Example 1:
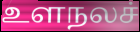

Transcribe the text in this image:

உளநலச்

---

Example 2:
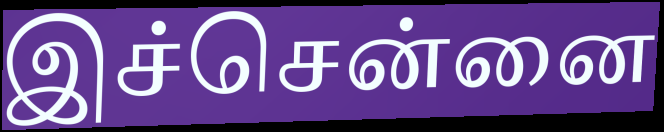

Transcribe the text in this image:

இச்சென்னை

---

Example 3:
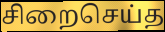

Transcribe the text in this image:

சிறைசெய்த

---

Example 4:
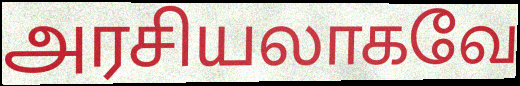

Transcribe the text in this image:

அரசியலாகவே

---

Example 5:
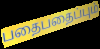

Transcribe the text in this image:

பதைபதைப்பும்